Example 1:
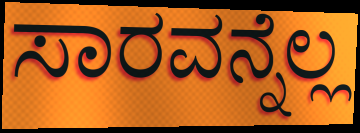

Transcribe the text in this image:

ಸಾರವನ್ನೆಲ್ಲ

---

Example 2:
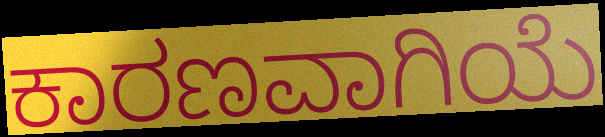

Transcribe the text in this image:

ಕಾರಣವಾಗಿಯೆ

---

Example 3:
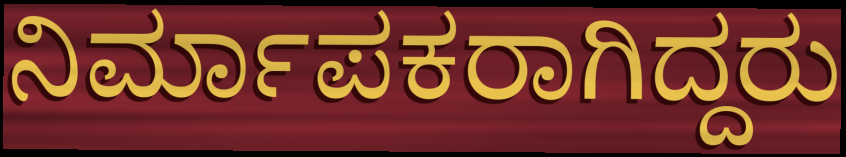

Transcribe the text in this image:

ನಿರ್ಮಾಪಕರಾಗಿದ್ದರು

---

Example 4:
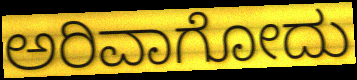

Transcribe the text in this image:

ಅರಿವಾಗೋದು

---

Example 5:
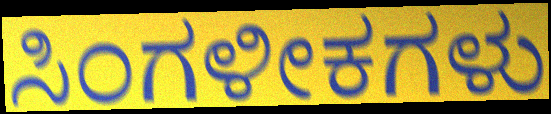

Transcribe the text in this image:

ಸಿಂಗಳೀಕಗಳು